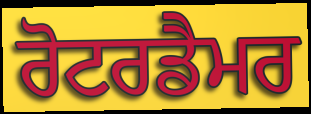
ਰੋਟਰਡੈਮਰ